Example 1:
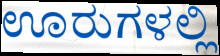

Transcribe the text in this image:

ಊರುಗಳಲ್ಲಿ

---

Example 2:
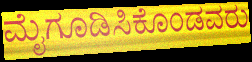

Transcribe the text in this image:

ಮೈಗೂಡಿಸಿಕೊಂಡವರು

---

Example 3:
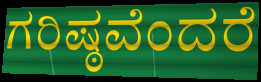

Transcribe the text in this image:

ಗರಿಷ್ಠವೆಂದರೆ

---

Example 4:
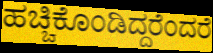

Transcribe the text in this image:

ಹಚ್ಚಿಕೊಂಡಿದ್ದರೆಂದರೆ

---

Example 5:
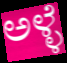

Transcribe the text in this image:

ಅಳ್ಳೆ